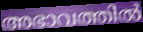
അഭാവത്തിൽ